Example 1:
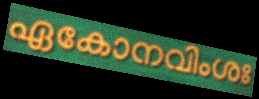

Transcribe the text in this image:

ഏകോനവിംശഃ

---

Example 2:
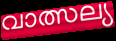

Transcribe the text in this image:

വാത്സല്യ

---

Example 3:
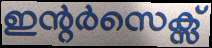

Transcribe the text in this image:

ഇന്റർസെക്സ്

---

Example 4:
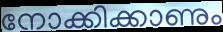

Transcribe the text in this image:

നോക്കിക്കാണും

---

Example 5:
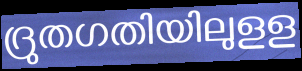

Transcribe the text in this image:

ദ്രുതഗതിയിലുളള